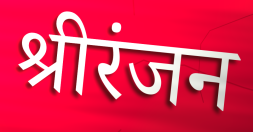
श्रीरंजन